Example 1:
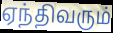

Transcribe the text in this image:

ஏந்திவரும்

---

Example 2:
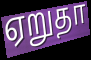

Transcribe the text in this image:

ஏறுதா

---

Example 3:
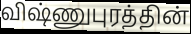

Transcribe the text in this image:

விஷ்ணுபுரத்தின்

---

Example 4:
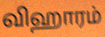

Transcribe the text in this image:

விஹாரம்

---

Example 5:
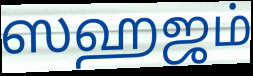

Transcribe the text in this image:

ஸஹஜம்